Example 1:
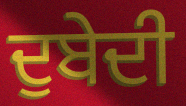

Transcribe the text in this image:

ਦੁਬੇਦੀ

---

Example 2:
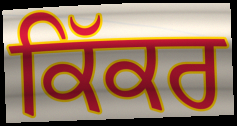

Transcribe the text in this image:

ਕਿੱਕਰ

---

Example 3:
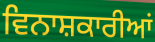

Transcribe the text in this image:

ਵਿਨਾਸ਼ਕਾਰੀਆਂ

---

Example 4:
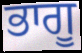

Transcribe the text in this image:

ਭਾਗੂ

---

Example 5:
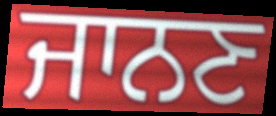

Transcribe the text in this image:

ਜਾਨਣ